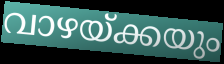
വാഴയ്ക്കയും